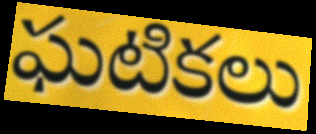
ఘటికలు